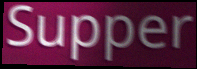
Supper